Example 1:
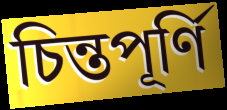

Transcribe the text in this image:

চিন্তপূৰ্ণি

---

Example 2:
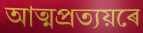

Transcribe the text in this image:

আত্মপ্ৰত্যয়ৰে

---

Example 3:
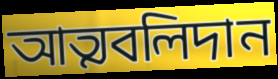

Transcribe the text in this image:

আত্মবলিদান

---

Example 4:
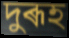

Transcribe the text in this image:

দুৰূহ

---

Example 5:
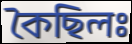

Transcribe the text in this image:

কৈছিলঃ